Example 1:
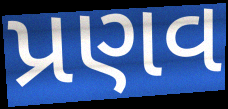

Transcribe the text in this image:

પ્રણવ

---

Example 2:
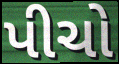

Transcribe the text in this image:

પીચો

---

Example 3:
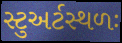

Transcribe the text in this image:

સ્ટુઅર્ટસ્થળઃ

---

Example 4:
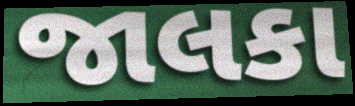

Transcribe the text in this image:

જાલકા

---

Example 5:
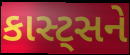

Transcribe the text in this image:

કાસ્ટ્સને